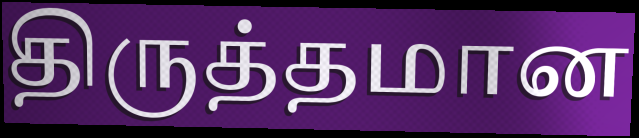
திருத்தமான